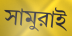
সামুরাই